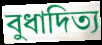
বুধাদিত্য